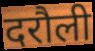
दरौली